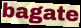
bagate